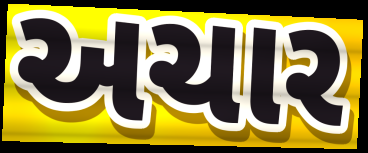
અચાર